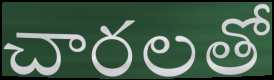
చారలతో